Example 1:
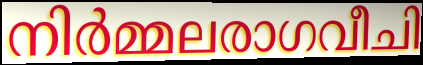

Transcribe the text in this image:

നിർമ്മലരാഗവീചി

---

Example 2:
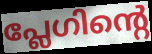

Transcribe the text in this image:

പ്ലേഗിന്റെ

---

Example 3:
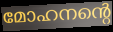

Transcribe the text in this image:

മോഹനന്റെ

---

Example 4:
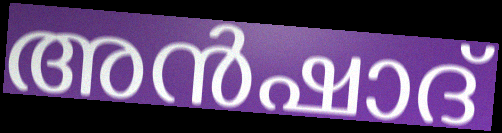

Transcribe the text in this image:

അൻഷാദ്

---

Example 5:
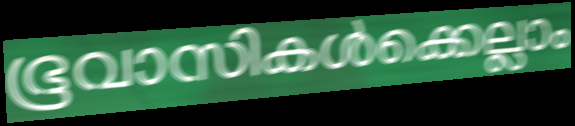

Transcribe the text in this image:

ഭൂവാസികൾക്കെല്ലാം